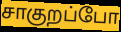
சாகுறப்போ